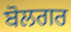
ਬੋਲਗਰ